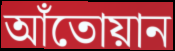
আঁতোয়ান